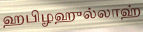
ஹபிழஹுல்லாஹ்